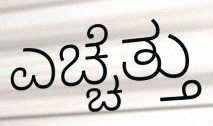
ಎಚ್ಚೆತ್ತು